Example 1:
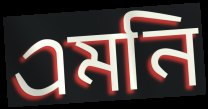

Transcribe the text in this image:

এমনি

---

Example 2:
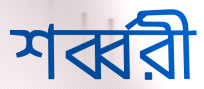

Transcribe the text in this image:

শর্ব্বরী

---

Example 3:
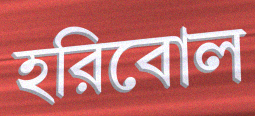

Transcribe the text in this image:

হরিবোল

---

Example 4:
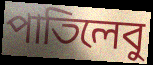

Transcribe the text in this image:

পাতিলেবু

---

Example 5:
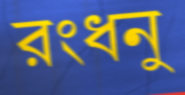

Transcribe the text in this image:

রংধনু